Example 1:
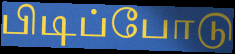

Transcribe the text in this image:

பிடிப்போடு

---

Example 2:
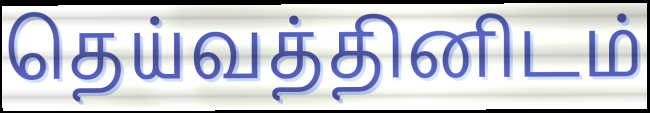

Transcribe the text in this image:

தெய்வத்தினிடம்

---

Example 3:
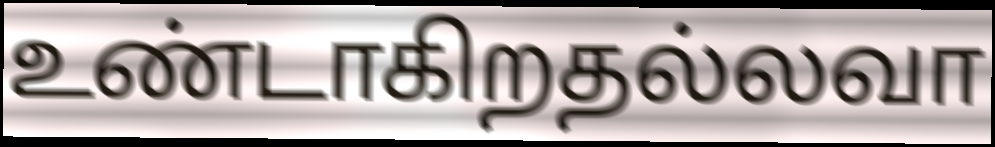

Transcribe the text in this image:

உண்டாகிறதல்லவா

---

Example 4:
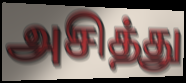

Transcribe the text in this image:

அசித்து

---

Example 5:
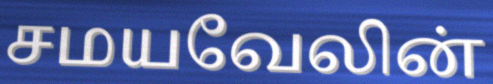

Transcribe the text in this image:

சமயவேலின்